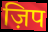
ज़िप